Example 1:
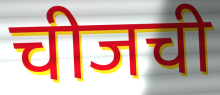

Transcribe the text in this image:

चीजची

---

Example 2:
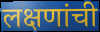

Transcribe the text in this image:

लक्षणांची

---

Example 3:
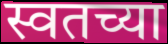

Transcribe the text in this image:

स्वतच्या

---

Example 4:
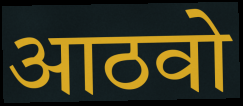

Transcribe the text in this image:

आठवो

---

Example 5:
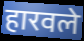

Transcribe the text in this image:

हारवले